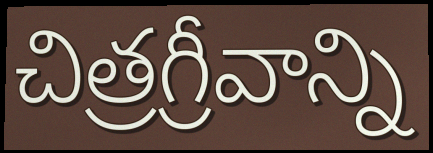
చిత్రగ్రీవాన్ని